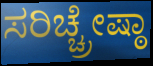
ಸರಿಚ್ಚ್ರೇಷ್ಠಾ